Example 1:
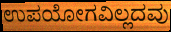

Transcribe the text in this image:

ಉಪಯೋಗವಿಲ್ಲದವು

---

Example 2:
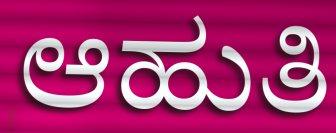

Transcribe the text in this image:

ಆಹುತಿ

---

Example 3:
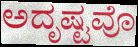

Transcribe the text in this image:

ಅದೃಷ್ಟವೊ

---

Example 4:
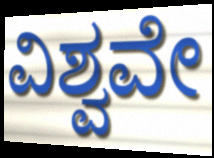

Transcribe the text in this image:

ವಿಶ್ವವೇ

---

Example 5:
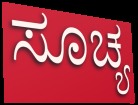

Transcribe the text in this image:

ಸೂಚ್ಯ